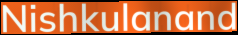
Nishkulanand